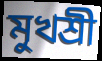
মুখশ্রী